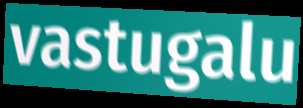
vastugalu